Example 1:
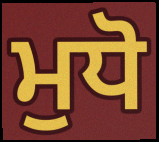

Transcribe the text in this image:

ਮੁਧੋ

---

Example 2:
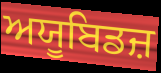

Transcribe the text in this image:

ਅਯੂਬਿਡਜ਼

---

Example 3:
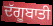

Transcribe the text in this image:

ਦੱਗੂਬਾਤੀ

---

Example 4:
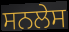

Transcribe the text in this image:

ਸਨਲੇਸ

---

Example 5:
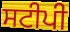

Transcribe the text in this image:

ਸਟੀਪੀ